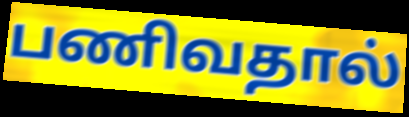
பணிவதால்